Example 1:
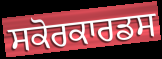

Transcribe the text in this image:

ਸਕੋਰਕਾਰਡਸ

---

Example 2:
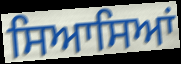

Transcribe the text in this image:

ਸਿਆਸਿਆਂ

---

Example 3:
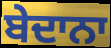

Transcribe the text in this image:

ਬੇਦਾਨਾ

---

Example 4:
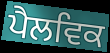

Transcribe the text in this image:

ਪੈਲਵਿਕ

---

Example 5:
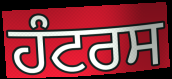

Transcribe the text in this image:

ਹੰਟਰਸ